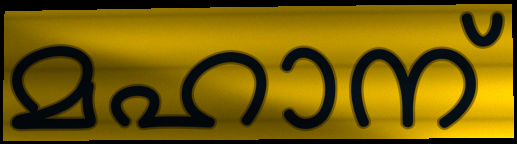
മഹാന്